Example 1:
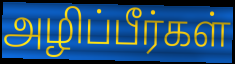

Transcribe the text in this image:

அழிப்பீர்கள்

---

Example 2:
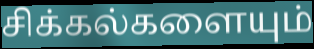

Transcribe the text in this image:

சிக்கல்களையும்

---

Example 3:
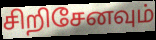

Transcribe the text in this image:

சிறிசேனவும்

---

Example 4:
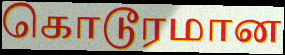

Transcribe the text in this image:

கொடூரமான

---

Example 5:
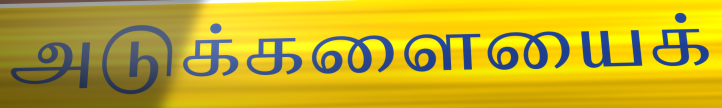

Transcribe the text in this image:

அடுக்களையைக்